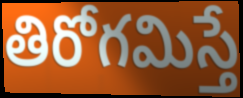
తిరోగమిస్తే